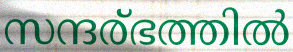
സന്ദര്ഭത്തിൽ